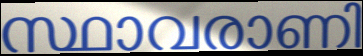
സ്ഥാവരാണി